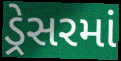
ડ્રેસરમાં